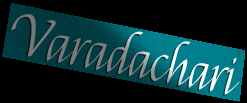
Varadachari